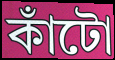
কাঁটো